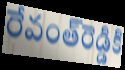
రేవంత్‌రెడ్డికి